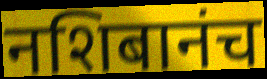
नशिबानंच